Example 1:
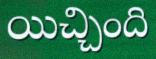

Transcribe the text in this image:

యిచ్చింది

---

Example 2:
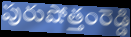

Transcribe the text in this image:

పురుషోత్తంరెడ్డి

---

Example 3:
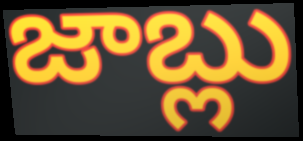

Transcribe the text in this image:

జాబ్లు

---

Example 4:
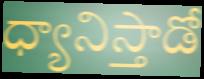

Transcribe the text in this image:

ధ్యానిస్తాడో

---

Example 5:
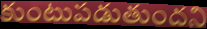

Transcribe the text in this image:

కుంటుపడుతుందని